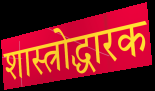
शास्त्रोद्धारक